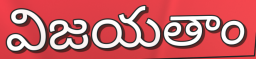
విజయతాం